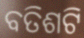
ବତିଶଟି